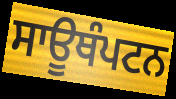
ਸਾਊਥੰਪਟਨ